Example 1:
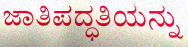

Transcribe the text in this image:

ಜಾತಿಪದ್ಧತಿಯನ್ನು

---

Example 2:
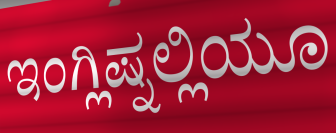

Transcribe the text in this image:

ಇಂಗ್ಲಿಷ್ನಲ್ಲಿಯೂ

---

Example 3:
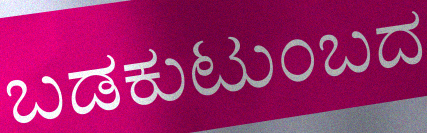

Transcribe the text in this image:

ಬಡಕುಟುಂಬದ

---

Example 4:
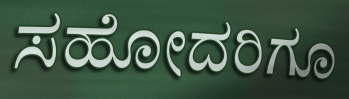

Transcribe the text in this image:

ಸಹೋದರಿಗೂ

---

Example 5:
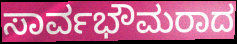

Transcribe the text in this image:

ಸಾರ್ವಭೌಮರಾದ